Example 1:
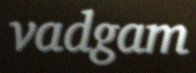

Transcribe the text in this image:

vadgam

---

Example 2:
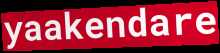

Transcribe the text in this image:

yaakendare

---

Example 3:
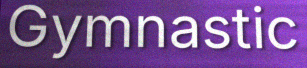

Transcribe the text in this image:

Gymnastic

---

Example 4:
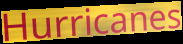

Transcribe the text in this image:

Hurricanes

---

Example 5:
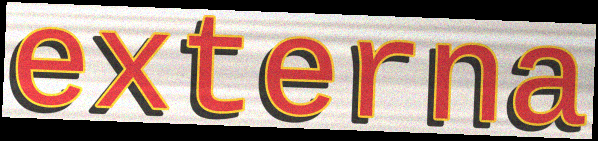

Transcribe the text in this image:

externa